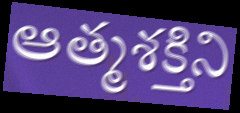
ఆత్మశక్తిని